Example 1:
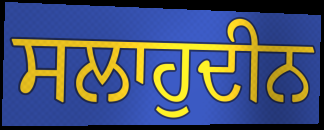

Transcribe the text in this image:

ਸਲਾਹੁਦੀਨ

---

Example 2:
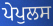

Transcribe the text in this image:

ਪੇਪੁਲਸ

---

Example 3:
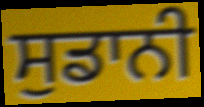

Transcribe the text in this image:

ਸੁਡਾਨੀ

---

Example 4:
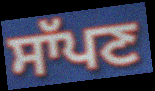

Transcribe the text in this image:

ਸਾੱਪਣ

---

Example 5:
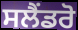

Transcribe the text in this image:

ਸਲੈਂਡਰੋ